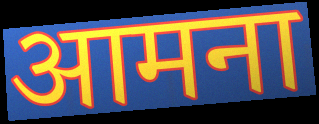
आमना